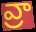
వ్రా